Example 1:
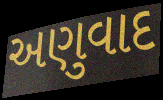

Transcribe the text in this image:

અણુવાદ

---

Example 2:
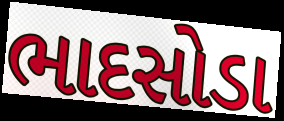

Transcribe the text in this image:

ભાદસોડા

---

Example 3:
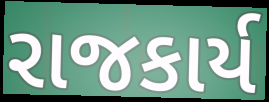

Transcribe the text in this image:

રાજકાર્ય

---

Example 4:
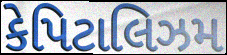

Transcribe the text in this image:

કેપિટાલિઝમ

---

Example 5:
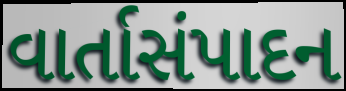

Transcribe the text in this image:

વાર્તાસંપાદન